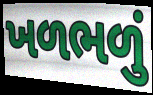
ખળભળું